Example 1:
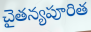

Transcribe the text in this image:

చైతన్యపూరిత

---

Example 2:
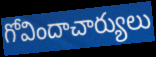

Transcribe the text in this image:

గోవిందాచార్యులు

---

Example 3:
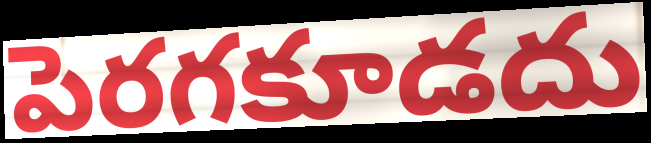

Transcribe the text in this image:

పెరగకూడదు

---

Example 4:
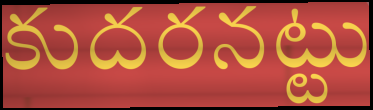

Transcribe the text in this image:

కుదరనట్టు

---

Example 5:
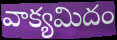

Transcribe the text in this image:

వాక్యమిదం